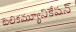
టెలికమ్యూనికేషన్